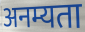
अनम्यता